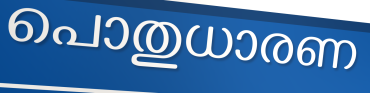
പൊതുധാരണ